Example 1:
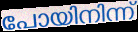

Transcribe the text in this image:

പോയിനിന്ന്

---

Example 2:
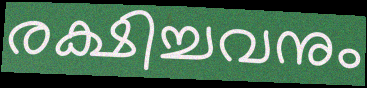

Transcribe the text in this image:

രക്ഷിച്ചവനും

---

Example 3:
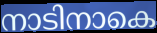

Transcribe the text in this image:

നാടിനാകെ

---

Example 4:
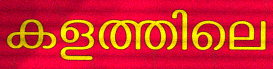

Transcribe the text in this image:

കളത്തിലെ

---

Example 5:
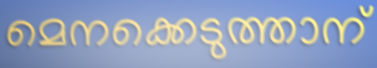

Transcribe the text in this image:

മെനക്കെടുത്താന്